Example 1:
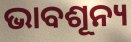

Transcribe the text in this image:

ଭାବଶୂନ୍ୟ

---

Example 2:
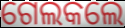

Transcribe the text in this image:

ଗେଲକଲେ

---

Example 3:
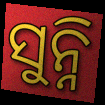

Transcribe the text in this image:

ସୁନ୍ନି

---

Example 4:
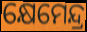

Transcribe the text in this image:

କ୍ଷେମେନ୍ଦ୍ର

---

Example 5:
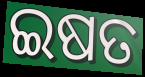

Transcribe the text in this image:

ଇଷତ